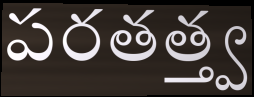
పరతత్త్వ